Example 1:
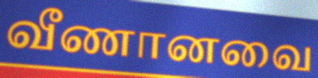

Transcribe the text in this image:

வீணானவை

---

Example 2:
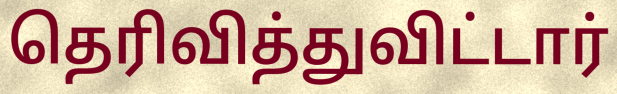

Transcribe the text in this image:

தெரிவித்துவிட்டார்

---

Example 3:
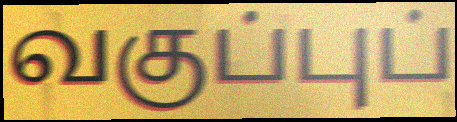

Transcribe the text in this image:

வகுப்புப்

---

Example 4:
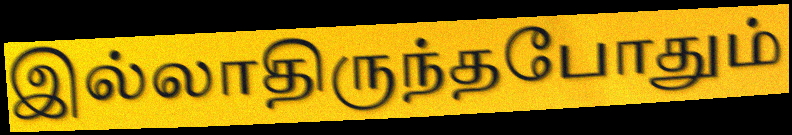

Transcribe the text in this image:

இல்லாதிருந்தபோதும்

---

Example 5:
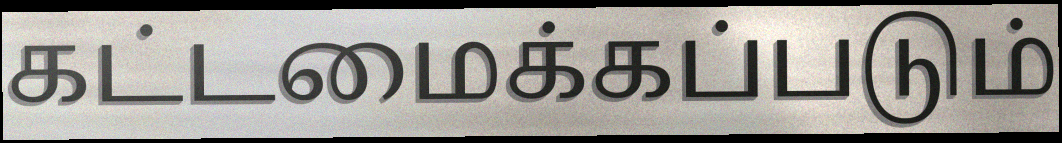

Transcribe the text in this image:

கட்டமைக்கப்படும்